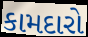
કામદારો